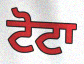
ਟੋਟਾ